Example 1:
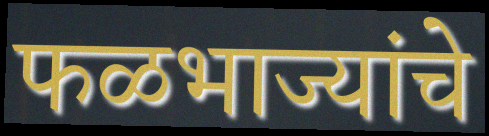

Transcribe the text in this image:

फळभाज्यांचे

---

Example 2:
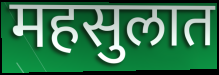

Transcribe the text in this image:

महसुलात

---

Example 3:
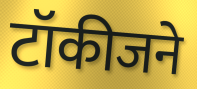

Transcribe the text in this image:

टॉकीजने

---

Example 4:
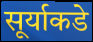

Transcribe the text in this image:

सूर्याकडे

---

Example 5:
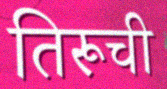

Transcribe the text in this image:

तिरूची